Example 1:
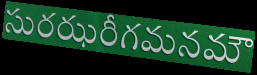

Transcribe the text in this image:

సురఝరీగమనమౌ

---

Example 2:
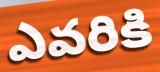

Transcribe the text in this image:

ఎవరికి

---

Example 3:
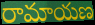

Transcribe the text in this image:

రామాయణ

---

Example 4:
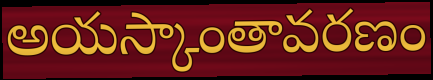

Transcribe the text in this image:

అయస్కాంతావరణం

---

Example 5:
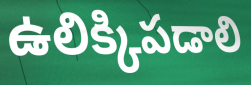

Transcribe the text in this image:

ఉలిక్కిపడాలి